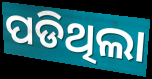
ପଡିଥିଲା